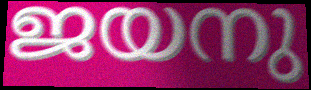
ജയനു